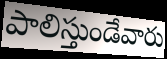
పాలిస్తుండేవారు